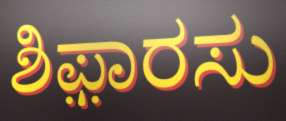
ಶಿಫ಼ಾರಸು